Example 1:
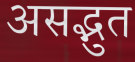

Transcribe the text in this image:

असद्भुत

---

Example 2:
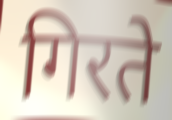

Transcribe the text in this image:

गिरते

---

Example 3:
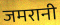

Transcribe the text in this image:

जमरानी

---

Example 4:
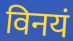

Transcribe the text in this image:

विनयं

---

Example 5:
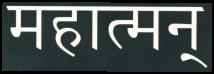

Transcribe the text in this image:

महात्मन्